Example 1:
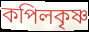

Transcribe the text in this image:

কপিলকৃষ্ণ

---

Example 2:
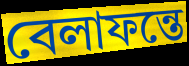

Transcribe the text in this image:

বেলাফন্তে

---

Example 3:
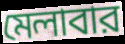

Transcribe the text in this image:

মেলাবার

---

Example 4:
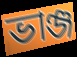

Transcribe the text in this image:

ভাঞ্জ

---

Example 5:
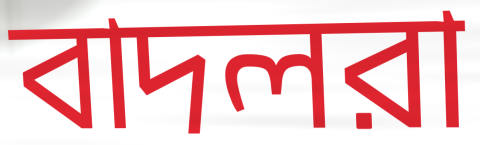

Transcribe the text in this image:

বাদলরা